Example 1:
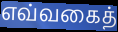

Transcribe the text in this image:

எவ்வகைத்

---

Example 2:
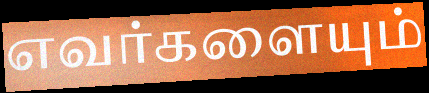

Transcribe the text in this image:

எவர்களையும்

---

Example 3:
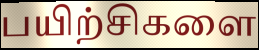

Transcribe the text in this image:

பயிற்சிகளை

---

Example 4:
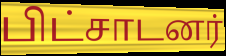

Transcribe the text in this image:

பிட்சாடனர்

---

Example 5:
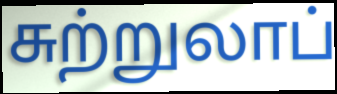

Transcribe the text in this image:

சுற்றுலாப்